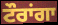
ਟੌਰਾਂਗਾ